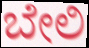
ಬೇಲಿ